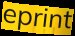
eprint